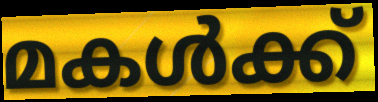
മകൾക്ക്